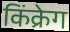
किंक्रेग